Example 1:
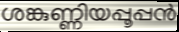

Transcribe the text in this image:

ശങ്കുണ്ണിയപ്പൂപ്പൻ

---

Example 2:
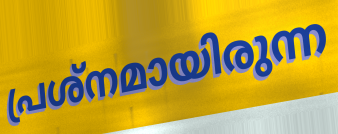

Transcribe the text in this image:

പ്രശ്നമായിരുന്ന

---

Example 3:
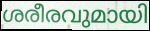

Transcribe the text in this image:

ശരീരവുമായി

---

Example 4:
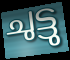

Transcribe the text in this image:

ചുട്ടു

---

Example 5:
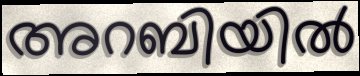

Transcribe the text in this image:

അറബിയിൽ